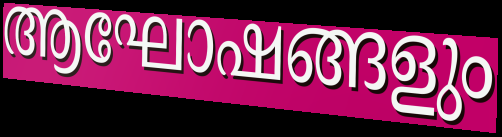
ആഘോഷങ്ങളും